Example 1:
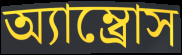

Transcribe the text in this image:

অ্যাম্ব্রোস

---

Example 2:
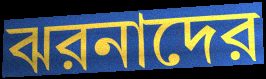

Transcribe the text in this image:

ঝরনাদের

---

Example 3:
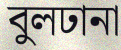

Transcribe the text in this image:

বুলঢানা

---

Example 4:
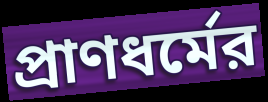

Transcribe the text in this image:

প্রাণধর্মের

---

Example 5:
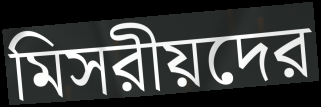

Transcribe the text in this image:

মিসরীয়দের